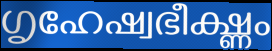
ഗൃഹേഷ്വഭീക്ഷ്ണം